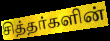
சித்தர்களின்